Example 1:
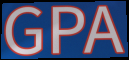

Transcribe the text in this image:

GPA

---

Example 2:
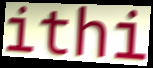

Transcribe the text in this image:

ithi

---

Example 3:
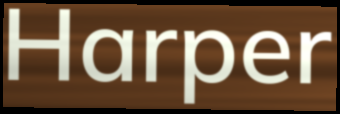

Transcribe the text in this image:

Harper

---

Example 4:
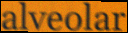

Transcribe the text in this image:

alveolar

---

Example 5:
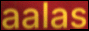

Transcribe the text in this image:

aalas